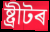
ষ্ট্ৰীটৰ